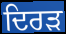
ਦਿਰੜ